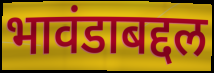
भावंडाबद्दल